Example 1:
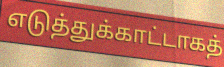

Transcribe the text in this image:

எடுத்துக்காட்டாகத்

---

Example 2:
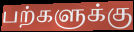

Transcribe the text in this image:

பற்களுக்கு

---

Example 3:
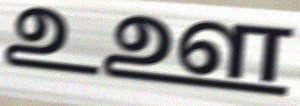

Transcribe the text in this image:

உஊ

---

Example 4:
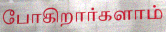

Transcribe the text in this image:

போகிறார்களாம்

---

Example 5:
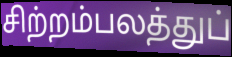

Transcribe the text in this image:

சிற்றம்பலத்துப்